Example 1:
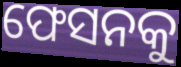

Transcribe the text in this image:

ଫେସନକୁ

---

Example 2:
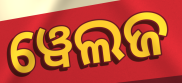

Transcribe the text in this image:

ୱେଲଜ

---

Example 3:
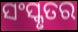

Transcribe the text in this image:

ସଂସ୍କୃତର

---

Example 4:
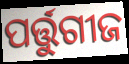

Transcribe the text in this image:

ପର୍ତ୍ତୁଗୀଜ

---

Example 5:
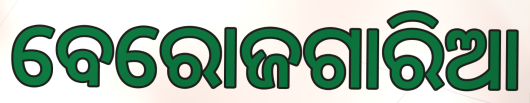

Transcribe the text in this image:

ବେରୋଜଗାରିଆ